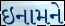
ઇનામને